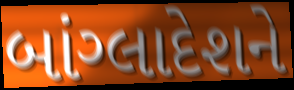
બાંગ્લાદેશને